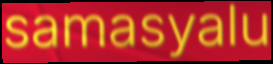
samasyalu